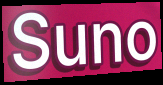
Suno